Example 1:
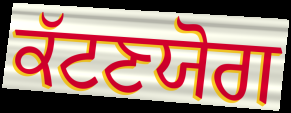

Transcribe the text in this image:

ਕੱਟਣਯੋਗ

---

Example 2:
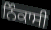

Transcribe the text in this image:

ਨਿੰਕਾਸੀ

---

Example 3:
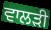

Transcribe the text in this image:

ਵਾਲੜੀ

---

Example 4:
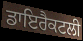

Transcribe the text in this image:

ਡਾਇਰੈਕਟਲੀ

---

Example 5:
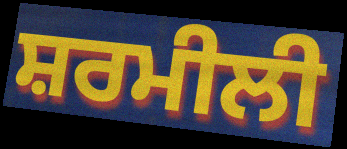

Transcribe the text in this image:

ਸ਼ਰਮੀਲੀ